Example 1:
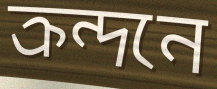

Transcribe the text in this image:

ক্রন্দনে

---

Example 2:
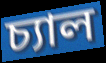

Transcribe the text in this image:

চ্যাল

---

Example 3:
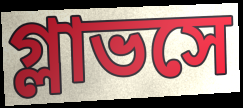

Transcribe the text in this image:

গ্লাভসে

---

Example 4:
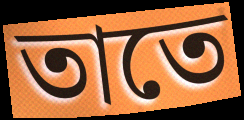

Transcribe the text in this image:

তাতে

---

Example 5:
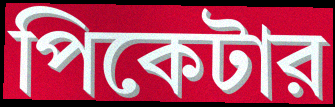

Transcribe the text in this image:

পিকেটার